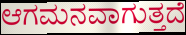
ಆಗಮನವಾಗುತ್ತದೆ